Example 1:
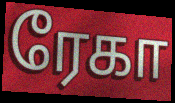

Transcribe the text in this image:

ரேகா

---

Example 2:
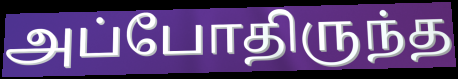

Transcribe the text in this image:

அப்போதிருந்த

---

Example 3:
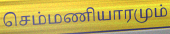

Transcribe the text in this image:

செம்மணியாரமும்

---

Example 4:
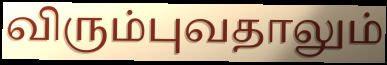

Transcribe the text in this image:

விரும்புவதாலும்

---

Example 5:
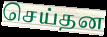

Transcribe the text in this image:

செய்தன